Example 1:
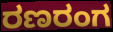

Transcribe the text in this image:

ರಣರಂಗ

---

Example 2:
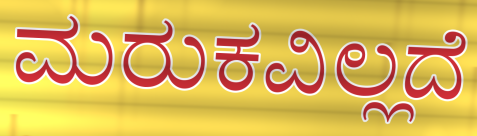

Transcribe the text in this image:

ಮರುಕವಿಲ್ಲದೆ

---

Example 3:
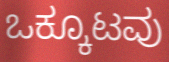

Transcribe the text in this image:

ಒಕ್ಕೂಟವು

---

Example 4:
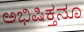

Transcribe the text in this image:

ಅಭಿಷಿಕ್ತನೂ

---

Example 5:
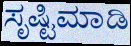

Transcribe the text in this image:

ಸೃಷ್ಟಿಮಾಡಿ